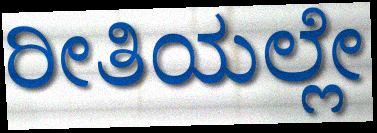
ರೀತಿಯಲ್ಲೇ